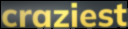
craziest